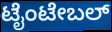
ಟೈಂಟೇಬಲ್